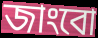
জাংবো